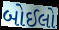
બોઈલો